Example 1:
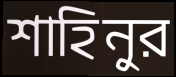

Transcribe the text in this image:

শাহিনুর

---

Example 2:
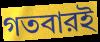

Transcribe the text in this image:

গতবারই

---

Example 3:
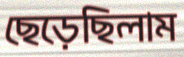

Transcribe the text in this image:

ছেড়েছিলাম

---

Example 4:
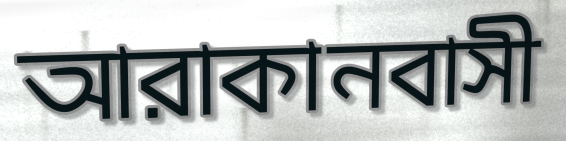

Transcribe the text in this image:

আরাকানবাসী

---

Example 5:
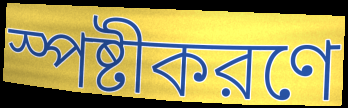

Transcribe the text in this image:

স্পষ্টীকরণে